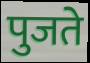
पुजते